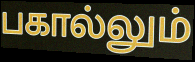
பகால்லும்